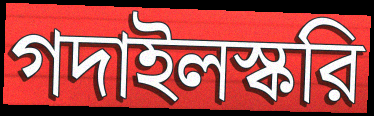
গদাইলস্করি